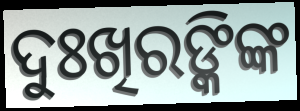
ଦୁଃଖିରଙ୍କିଙ୍କ